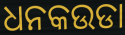
ଧନକଉଡା